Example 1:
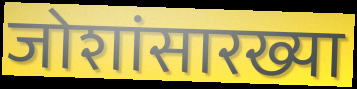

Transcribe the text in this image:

जोशांसारख्या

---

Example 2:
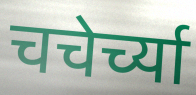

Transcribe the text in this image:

चचेर्च्या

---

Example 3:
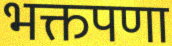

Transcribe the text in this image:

भक्तपणा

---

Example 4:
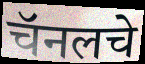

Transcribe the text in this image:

चॅनलचे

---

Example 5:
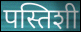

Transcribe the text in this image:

पस्तिशी